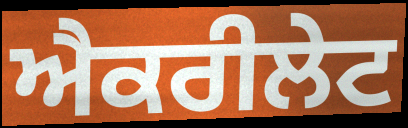
ਐਕਰੀਲੇਟ